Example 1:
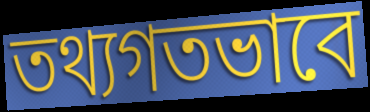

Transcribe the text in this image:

তথ্যগতভাবে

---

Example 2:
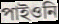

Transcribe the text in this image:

পাইওনি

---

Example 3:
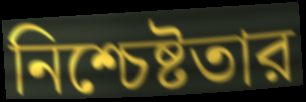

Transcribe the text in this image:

নিশ্চেষ্টতার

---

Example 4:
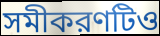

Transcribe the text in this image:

সমীকরণটিও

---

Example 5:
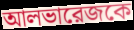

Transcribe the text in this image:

আলভারেজকে